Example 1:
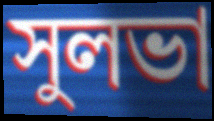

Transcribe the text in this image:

সুলভা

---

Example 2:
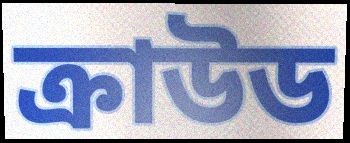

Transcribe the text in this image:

ক্রাউড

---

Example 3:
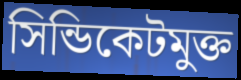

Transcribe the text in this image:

সিন্ডিকেটমুক্ত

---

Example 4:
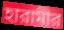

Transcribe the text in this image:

হারামীর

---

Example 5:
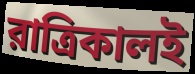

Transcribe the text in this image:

রাত্রিকালই